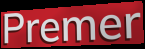
Premer